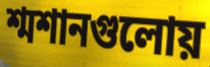
শ্মশানগুলোয়